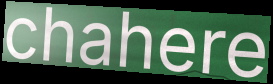
chahere